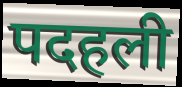
पदहली